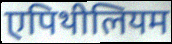
एपिथीलियम